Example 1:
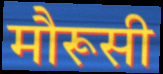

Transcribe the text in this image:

मौरूसी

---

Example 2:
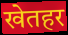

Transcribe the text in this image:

खेतहर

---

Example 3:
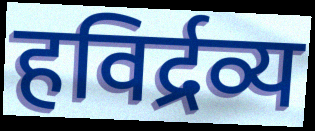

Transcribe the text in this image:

हविर्द्रव्य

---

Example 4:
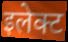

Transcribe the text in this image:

इलेक्ट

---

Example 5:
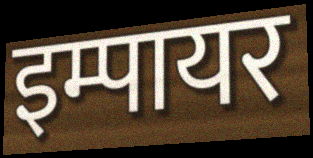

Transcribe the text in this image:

इम्पायर